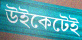
উইকেটেই